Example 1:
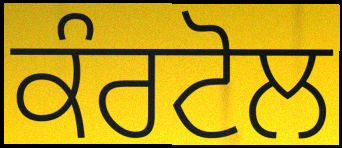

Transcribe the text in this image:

ਕੰਰਟੋਲ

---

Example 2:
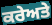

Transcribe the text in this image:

ਕਰੇਅਤੇ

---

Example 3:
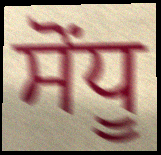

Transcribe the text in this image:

ਸੋਂਧੂ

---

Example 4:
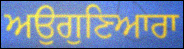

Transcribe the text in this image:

ਅਉਗੁਣਿਆਰਾ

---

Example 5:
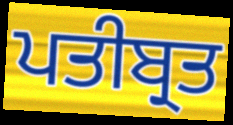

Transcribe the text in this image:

ਪਤੀਬ੍ਰਤ